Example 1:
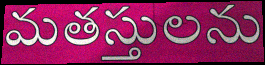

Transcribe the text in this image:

మతస్తులను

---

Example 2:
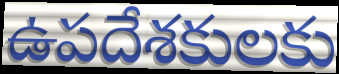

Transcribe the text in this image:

ఉపదేశకులకు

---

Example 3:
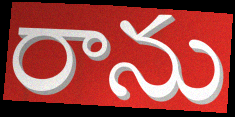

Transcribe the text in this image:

రాను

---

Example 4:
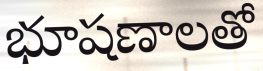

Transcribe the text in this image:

భూషణాలతో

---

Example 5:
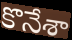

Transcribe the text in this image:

కొనేశా